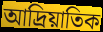
আদ্রিয়াতিক